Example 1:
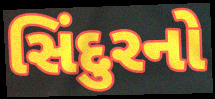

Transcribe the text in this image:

સિંદુરનો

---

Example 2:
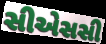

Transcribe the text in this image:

સીએસસી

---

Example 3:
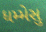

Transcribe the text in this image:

ધમ્મેસુ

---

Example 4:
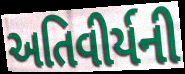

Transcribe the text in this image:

અતિવીર્યની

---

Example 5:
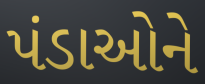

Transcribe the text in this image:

પંડાઓને